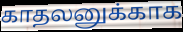
காதலனுக்காக